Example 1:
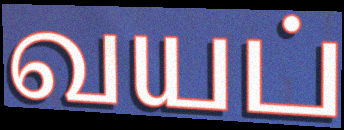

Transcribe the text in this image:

வயப்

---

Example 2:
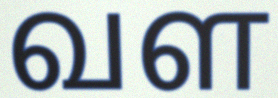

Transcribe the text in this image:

வள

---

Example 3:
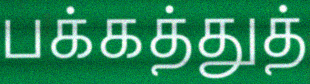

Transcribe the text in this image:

பக்கத்துத்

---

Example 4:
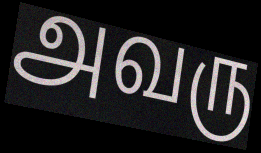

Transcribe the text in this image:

அவரு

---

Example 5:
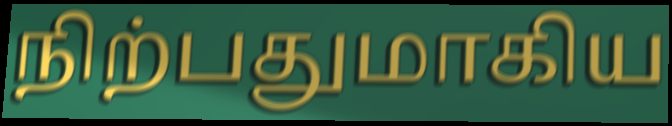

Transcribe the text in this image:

நிற்பதுமாகிய